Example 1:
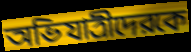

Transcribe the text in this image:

অভিযাত্রীদেরকে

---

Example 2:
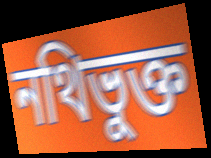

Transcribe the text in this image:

নথিভুক্ত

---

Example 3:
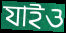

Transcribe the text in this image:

যাইও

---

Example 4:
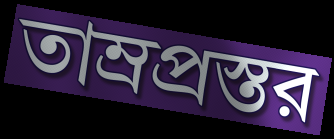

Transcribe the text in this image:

তাম্রপ্রস্তর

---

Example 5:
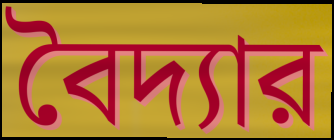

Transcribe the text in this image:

বৈদ্যার